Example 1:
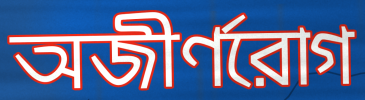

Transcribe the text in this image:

অজীর্ণরোগ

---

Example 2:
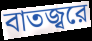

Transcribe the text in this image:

বাতজ্বরে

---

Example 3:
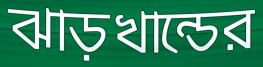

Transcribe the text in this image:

ঝাড়খান্ডের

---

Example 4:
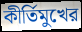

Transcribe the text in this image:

কীর্তিমুখের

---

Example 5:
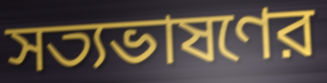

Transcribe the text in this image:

সত্যভাষণের